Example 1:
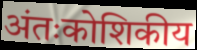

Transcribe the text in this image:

अंतःकोशिकीय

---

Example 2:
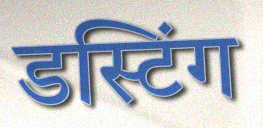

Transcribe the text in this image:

डस्टिंग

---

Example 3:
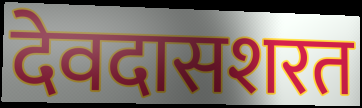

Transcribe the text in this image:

देवदासशरत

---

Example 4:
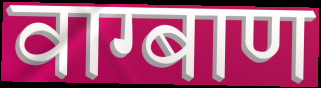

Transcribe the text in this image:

वाग्बाण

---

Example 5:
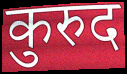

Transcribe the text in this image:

कुरुद